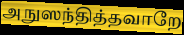
அநுஸந்தித்தவாறே